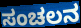
ಸಂಚಲನ